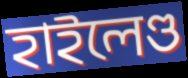
হাইলেণ্ড